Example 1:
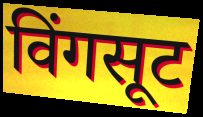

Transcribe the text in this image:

विंगसूट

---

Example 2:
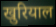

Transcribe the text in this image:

खुरियाल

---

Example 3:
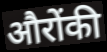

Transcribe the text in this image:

औरोंकी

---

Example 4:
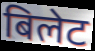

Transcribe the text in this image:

बिलेट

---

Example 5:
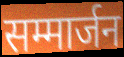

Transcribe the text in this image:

सम्मार्जन